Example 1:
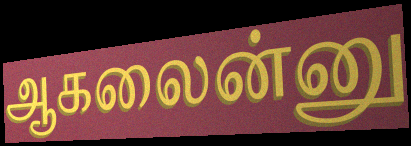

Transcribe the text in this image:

ஆகலைன்னு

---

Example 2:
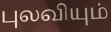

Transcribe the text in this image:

புலவியும்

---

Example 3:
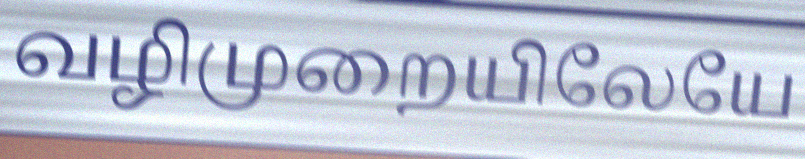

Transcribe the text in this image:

வழிமுறையிலேயே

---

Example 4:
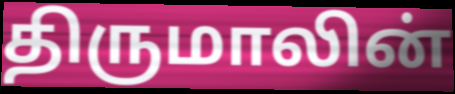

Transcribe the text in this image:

திருமாலின்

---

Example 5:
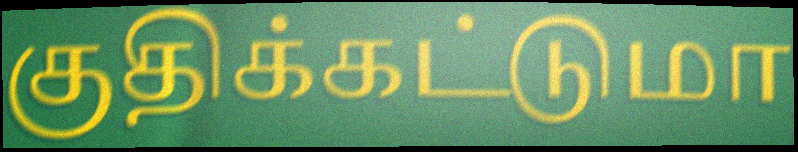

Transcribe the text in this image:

குதிக்கட்டுமா